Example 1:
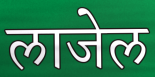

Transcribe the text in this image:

लाजेल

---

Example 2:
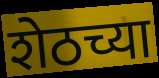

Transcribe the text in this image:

शेठच्या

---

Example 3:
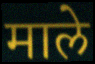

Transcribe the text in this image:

माले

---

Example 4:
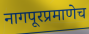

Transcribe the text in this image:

नागपूरप्रमाणेच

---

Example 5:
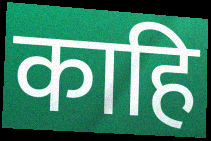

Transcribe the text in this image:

काहि